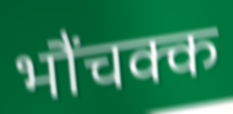
भौंचक्क